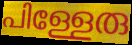
പിള്ളേരു